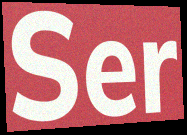
Ser